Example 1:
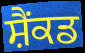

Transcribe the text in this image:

ਸ਼ੈਂਕਡ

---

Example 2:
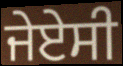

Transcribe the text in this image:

ਜੇਏਸੀ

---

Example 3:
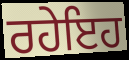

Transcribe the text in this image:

ਰਹੇਇਹ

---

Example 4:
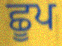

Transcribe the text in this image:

ਛੂਪ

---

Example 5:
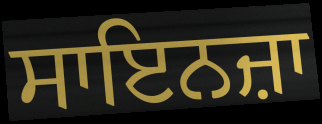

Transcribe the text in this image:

ਸਾਇਨਜ਼ਾ